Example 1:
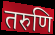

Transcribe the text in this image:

तरुणि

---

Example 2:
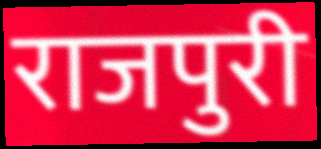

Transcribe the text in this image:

राजपुरी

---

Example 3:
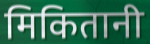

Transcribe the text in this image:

मिकितानी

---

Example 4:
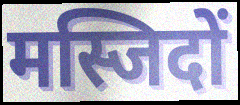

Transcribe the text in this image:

मस्जिदों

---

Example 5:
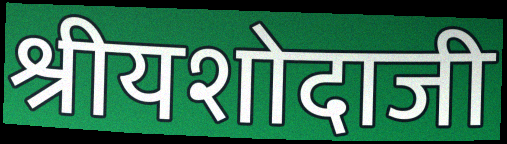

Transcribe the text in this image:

श्रीयशोदाजी